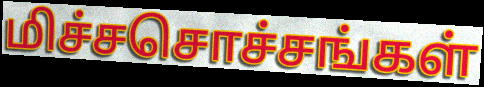
மிச்சசொச்சங்கள்